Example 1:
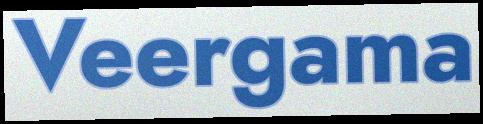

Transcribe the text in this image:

Veergama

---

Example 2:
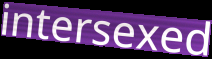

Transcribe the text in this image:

intersexed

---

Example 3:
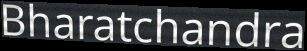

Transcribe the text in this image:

Bharatchandra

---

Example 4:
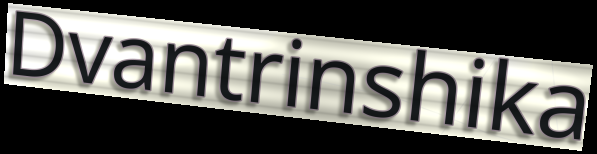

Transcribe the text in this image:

Dvantrinshika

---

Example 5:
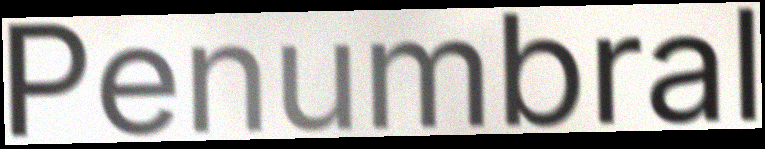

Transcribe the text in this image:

Penumbral